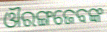
ଔରଙ୍ଗଜେବଙ୍କ